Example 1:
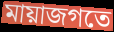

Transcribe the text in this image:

মায়াজগতে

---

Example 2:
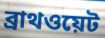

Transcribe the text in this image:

ব্রাথওয়েট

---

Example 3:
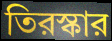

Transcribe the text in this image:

তিরস্কার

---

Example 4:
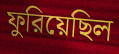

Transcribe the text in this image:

ফুরিয়েছিল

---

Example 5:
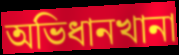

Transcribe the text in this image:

অভিধানখানা